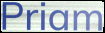
Priam